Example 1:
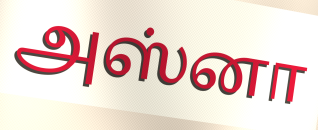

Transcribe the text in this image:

அஸ்னா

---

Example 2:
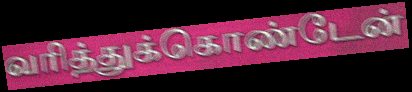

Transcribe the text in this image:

வரித்துக்கொண்டேன்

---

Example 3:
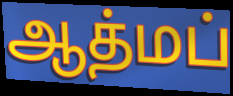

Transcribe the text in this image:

ஆத்மப்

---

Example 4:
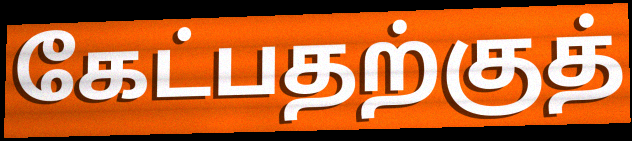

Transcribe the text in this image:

கேட்பதற்குத்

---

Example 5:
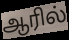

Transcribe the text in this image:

ஆரில்